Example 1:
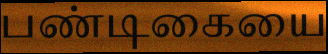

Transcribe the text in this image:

பண்டிகையை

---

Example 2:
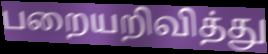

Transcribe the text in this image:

பறையறிவித்து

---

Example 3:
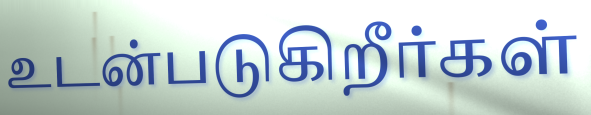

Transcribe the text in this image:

உடன்படுகிறீர்கள்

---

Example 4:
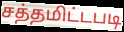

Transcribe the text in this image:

சத்தமிட்டபடி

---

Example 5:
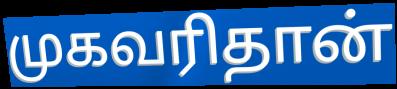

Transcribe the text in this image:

முகவரிதான்